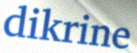
dikrine